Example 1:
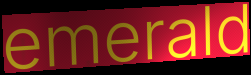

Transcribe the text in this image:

emerald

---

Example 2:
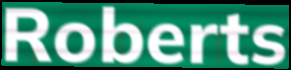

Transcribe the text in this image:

Roberts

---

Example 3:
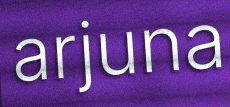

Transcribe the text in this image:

arjuna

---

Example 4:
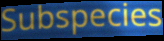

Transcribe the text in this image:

Subspecies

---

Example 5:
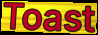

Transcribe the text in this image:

Toast